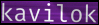
kavilok